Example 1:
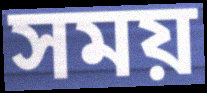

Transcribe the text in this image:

সময়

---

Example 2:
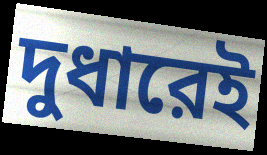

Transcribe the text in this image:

দুধারেই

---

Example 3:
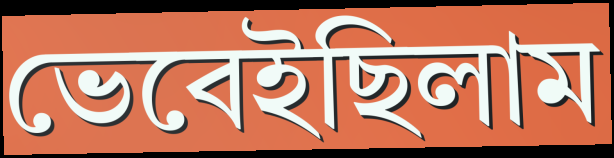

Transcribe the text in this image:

ভেবেইছিলাম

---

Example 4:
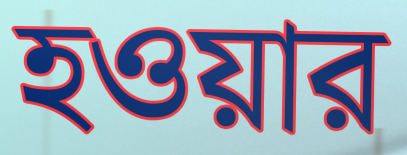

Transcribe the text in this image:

হওয়ার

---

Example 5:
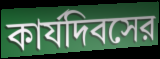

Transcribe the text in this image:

কার্যদিবসের